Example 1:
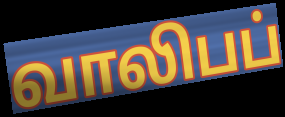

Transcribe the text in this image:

வாலிபப்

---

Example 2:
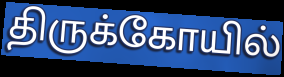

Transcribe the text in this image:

திருக்கோயில்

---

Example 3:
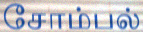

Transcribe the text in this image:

சோம்பல்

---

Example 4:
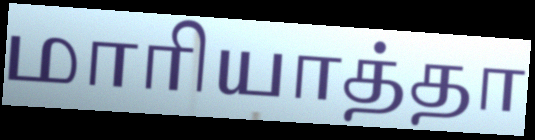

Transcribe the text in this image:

மாரியாத்தா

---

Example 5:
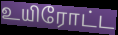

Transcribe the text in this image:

உயிரோட்ட